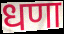
धणा